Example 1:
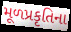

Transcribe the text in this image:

મૂળપ્રકૃતિના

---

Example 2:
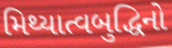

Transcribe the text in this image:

મિથ્યાત્વબુદ્ધિનો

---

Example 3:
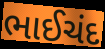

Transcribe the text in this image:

ભાઈચંદ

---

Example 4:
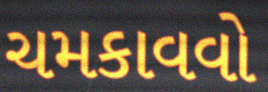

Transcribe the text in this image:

ચમકાવવો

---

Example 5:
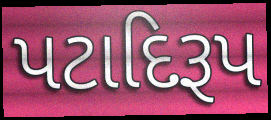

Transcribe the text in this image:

પટાદિરૂપ